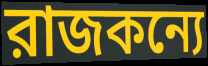
রাজকন্যে